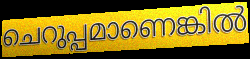
ചെറുപ്പമാണെങ്കിൽ